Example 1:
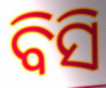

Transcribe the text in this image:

ବିସି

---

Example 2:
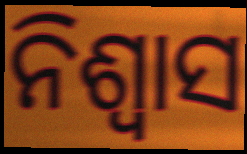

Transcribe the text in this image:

ନିଶ୍ଵାସ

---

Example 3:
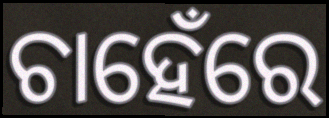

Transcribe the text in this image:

ଚାହେଁରେ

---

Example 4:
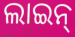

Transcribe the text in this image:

ଲାଇନ୍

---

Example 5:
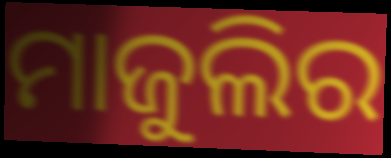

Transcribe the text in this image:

ମାଜୁଲିର